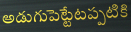
అడుగుపెట్టేటప్పటికి